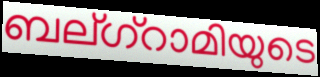
ബല്ഗ്റാമിയുടെ